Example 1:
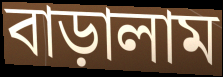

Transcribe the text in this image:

বাড়ালাম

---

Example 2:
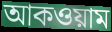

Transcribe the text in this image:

আকওয়াম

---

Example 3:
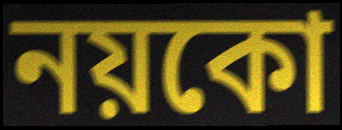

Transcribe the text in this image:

নয়কো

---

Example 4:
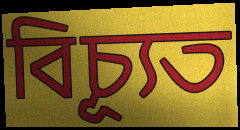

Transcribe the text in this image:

বিচ্যূত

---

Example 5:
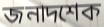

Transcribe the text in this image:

জনাদশেক